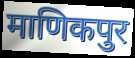
माणिकपुर